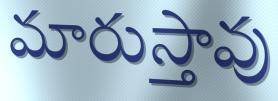
మారుస్తావు